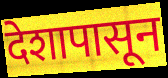
देशापासून